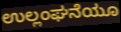
ಉಲ್ಲಂಘನೆಯೂ